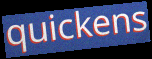
quickens